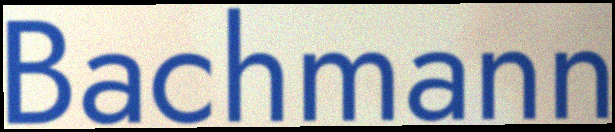
Bachmann